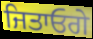
ਜਿਤਾਓਗੇ